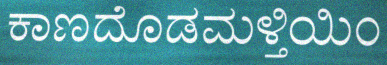
ಕಾಣದೊಡಮಳ್ತಿಯಿಂ